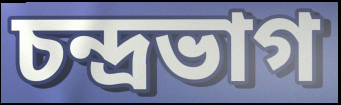
চন্দ্রভাগ